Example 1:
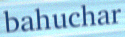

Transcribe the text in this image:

bahuchar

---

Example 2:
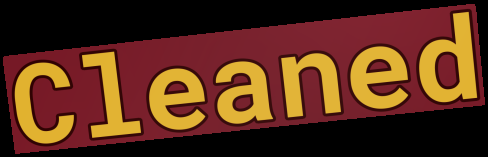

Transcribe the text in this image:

Cleaned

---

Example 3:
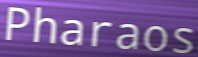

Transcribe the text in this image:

Pharaos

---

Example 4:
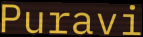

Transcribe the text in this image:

Puravi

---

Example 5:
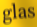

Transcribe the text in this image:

glas